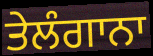
ਤੇਲੰਗਾਨਾ